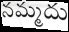
నమ్మదు